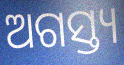
ଅଗସ୍ତ୍ୟ